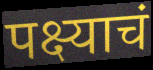
पक्ष्याचं